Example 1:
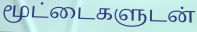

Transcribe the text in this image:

மூட்டைகளுடன்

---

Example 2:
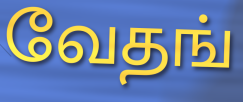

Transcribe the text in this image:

வேதங்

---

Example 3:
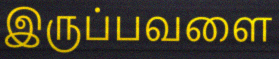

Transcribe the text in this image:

இருப்பவளை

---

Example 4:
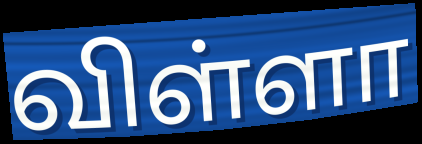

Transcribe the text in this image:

விள்ளா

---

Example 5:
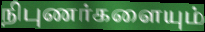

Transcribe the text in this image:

நிபுணர்களையும்